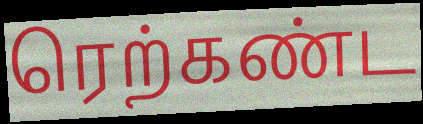
ரெற்கண்ட